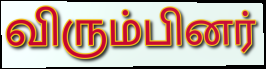
விரும்பினர்